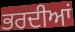
ਭਰਦੀਆਂ